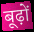
बूढ़ों